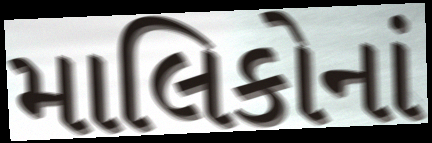
માલિકોનાં